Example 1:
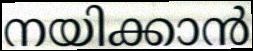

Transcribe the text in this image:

നയിക്കാൻ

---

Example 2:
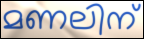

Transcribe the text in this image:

മണലിന്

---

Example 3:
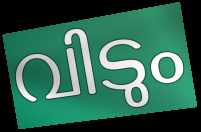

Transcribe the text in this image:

വിടും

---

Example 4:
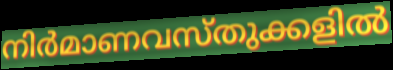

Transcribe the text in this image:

നിർമാണവസ്തുക്കളിൽ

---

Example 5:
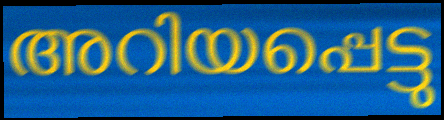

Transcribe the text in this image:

അറിയപ്പെട്ടു